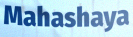
Mahashaya